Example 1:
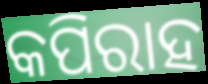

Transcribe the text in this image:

କପିରାହ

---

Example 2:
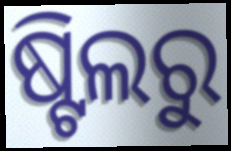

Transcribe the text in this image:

ଷ୍ଟିଲରୁ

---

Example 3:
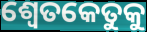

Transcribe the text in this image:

ଶ୍ୱେତକେତୁକୁ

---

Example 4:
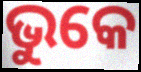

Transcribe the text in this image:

ଭୁକେ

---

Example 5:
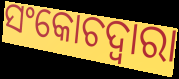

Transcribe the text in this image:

ସଂକୋଚଦ୍ୱାରା